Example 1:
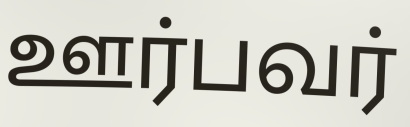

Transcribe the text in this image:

ஊர்பவர்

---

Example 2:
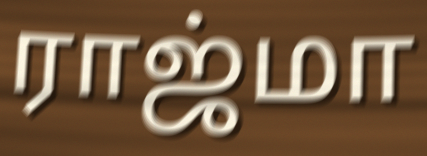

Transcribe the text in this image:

ராஜ்மா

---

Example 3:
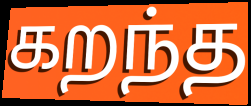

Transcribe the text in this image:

கறந்த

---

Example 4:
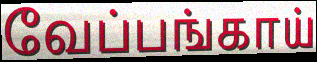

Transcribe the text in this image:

வேப்பங்காய்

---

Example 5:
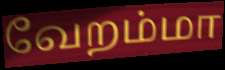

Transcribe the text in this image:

வேறம்மா